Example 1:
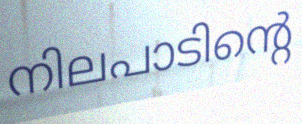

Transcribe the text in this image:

നിലപാടിന്റെ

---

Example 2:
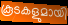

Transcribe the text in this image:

കൂടകളുമായി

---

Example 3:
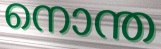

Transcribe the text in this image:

നൊന്ത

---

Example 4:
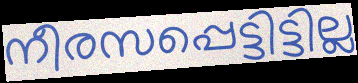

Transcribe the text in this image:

നീരസപ്പെട്ടിട്ടില്ല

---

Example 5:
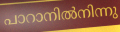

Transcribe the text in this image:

പാറാനിൽനിന്നു